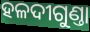
ହଳଦୀଗୁଣ୍ତା